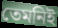
তেমনিই